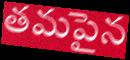
తమపైన